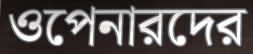
ওপেনারদের